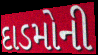
દાડમોની